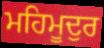
ਮਹਿਮੂਦੁਰ